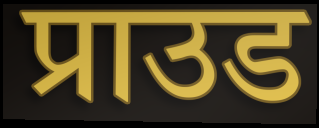
प्राउड